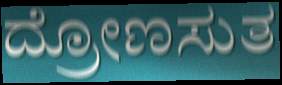
ದ್ರೋಣಸುತ